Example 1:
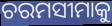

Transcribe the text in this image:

ଚରମସୀମାକୁ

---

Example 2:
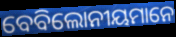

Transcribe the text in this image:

ବେବିଲୋନୀୟମାନେ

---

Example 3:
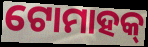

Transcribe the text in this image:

ଟୋମାହକ୍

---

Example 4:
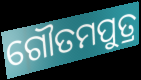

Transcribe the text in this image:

ଗୌତମପୁତ୍ର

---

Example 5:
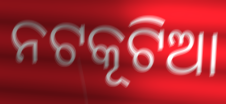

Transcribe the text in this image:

ନଟକୂଟିଆ